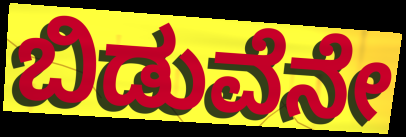
ಬಿಡುವೆನೇ